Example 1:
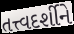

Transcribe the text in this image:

તત્ત્વદર્શીને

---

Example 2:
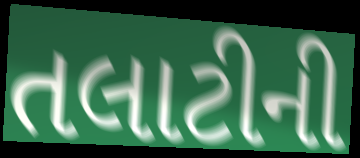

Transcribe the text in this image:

તલાટીની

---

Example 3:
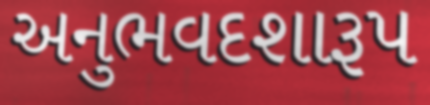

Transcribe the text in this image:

અનુભવદશારૂપ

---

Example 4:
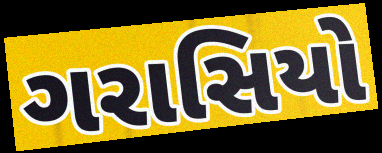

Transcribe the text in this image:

ગરાસિયો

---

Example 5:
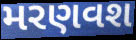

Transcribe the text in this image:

મરણવશ